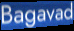
Bagavad